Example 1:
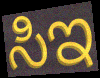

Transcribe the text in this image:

ಸಿಇ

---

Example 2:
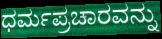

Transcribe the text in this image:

ಧರ್ಮಪ್ರಚಾರವನ್ನು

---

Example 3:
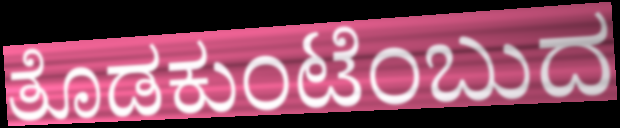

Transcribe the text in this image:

ತೊಡಕುಂಟೆಂಬುದ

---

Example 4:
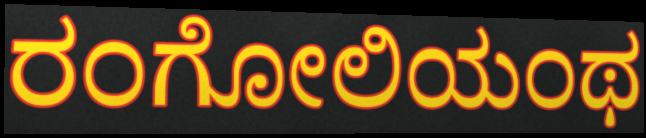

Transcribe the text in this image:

ರಂಗೋಲಿಯಂಥ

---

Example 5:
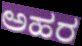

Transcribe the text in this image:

ಅಹರ